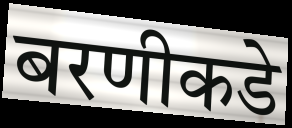
बरणीकडे